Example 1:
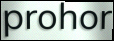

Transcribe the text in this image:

prohor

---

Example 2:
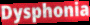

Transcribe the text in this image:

Dysphonia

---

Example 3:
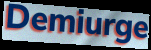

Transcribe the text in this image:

Demiurge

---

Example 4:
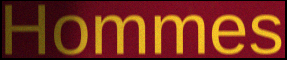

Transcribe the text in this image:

Hommes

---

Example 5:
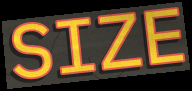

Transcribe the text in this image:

SIZE